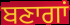
ਬਣਾਗਾਂ